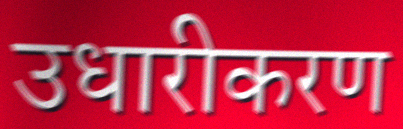
उधारीकरण